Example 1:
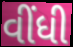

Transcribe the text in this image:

વીંધી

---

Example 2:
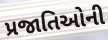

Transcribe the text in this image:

પ્રજાતિઓની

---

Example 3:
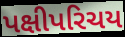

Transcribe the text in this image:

પક્ષીપરિચય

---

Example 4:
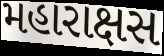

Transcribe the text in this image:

મહારાક્ષસ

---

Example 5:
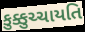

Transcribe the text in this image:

કુક્કુચ્ચાયતિ